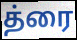
த்ரை